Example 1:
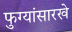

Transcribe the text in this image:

फुग्यांसारखे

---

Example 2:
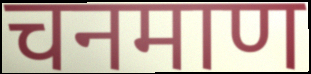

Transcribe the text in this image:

चनमाण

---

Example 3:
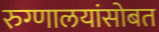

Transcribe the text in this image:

रुग्णालयांसोबत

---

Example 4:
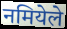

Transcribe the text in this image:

नमियेले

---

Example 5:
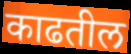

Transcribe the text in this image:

काढतील